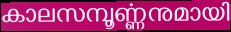
കാലസമ്പൂൎണ്ണനുമായി